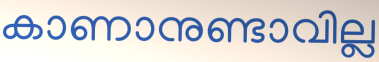
കാണാനുണ്ടാവില്ല